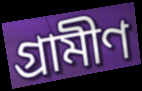
গ্ৰামীণ